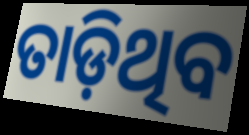
ତାଡ଼ିଥିବ